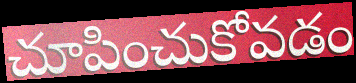
చూపించుకోవడం